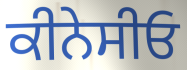
ਕੀਨੇਸੀਓ